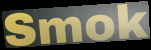
Smok